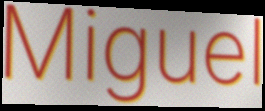
Miguel